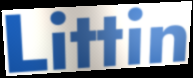
Littin